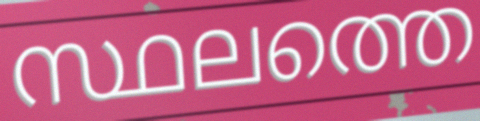
സ്ഥലത്തെ